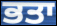
ਭਤਾ